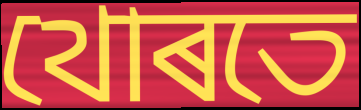
থোৰতে